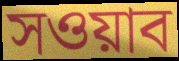
সওয়াব